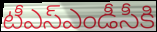
టీఎస్ఎండీసీకి